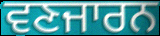
ਵਣਜਾਰਨ